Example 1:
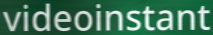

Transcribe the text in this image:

videoinstant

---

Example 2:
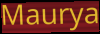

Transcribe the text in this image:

Maurya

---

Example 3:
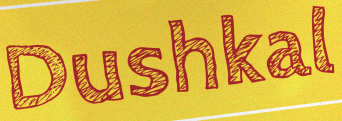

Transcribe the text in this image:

Dushkal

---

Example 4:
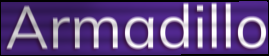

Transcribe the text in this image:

Armadillo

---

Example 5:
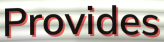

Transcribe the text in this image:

Provides